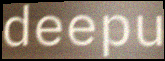
deepu